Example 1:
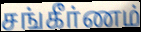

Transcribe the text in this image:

சங்கீர்ணம்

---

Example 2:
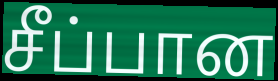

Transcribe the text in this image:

சீப்பான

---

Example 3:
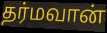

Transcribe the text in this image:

தர்மவான்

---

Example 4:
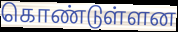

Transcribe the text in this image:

கொண்டுள்ளன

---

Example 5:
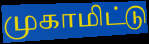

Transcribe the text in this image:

முகாமிட்டு